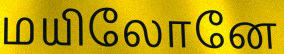
மயிலோனே